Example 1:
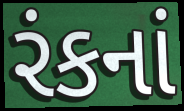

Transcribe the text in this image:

રંકનાં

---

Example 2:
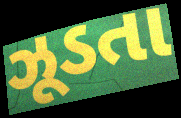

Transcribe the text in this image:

ઝૂડતા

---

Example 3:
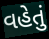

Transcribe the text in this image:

વહેતું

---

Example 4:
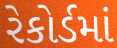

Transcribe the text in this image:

રેકોર્ડમાં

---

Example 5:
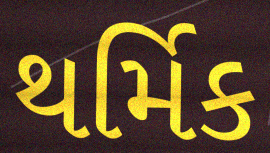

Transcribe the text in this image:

થર્મિક